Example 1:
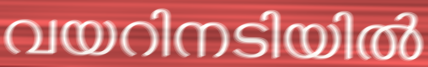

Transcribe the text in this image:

വയറിനടിയിൽ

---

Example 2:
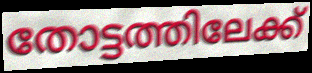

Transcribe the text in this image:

തോട്ടത്തിലേക്ക്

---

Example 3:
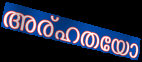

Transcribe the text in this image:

അര്ഹതയോ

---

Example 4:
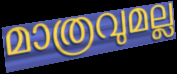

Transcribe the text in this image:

മാത്രവുമല്ല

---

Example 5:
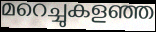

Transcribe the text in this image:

മറെച്ചുകളഞ്ഞ